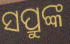
ସପ୍ରୁଙ୍କ